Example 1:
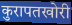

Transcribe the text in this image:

कुरापतखोरी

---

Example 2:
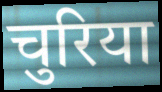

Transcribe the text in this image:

चुरिया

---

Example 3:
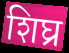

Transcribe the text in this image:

शिघ्र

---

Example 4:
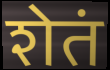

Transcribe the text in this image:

शेतं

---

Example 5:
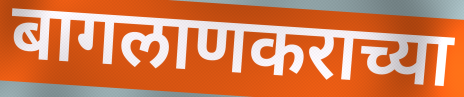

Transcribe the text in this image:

बागलाणकराच्या